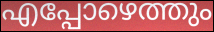
എപ്പോഴെത്തും